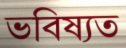
ভবিষ্যত